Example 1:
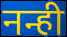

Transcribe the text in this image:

नन्ही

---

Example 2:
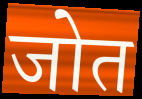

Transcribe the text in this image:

जोत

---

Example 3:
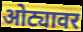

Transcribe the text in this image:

ओट्यावर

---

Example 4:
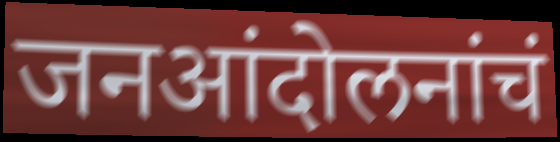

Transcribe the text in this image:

जनआंदोलनांचं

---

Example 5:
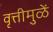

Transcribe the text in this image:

वृत्तीमुळें